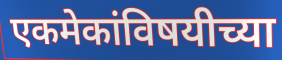
एकमेकांविषयीच्या